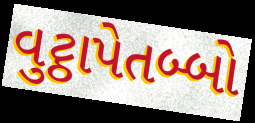
વુટ્ઠાપેતબ્બો